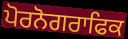
ਪੋਰਨੋਗਰਾਫਿਕ